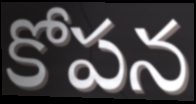
కోపన